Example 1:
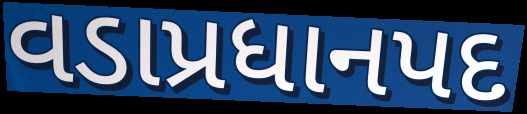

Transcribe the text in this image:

વડાપ્રધાનપદ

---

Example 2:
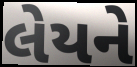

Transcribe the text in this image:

લેયને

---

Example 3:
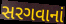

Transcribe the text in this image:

સરગવાનાં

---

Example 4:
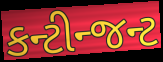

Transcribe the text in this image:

કન્ટીન્જન્ટ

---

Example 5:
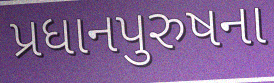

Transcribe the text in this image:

પ્રધાનપુરુષના